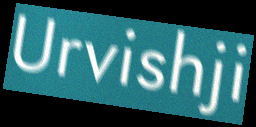
Urvishji